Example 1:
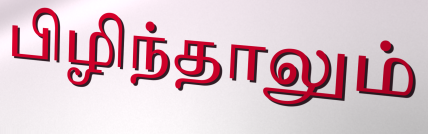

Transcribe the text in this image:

பிழிந்தாலும்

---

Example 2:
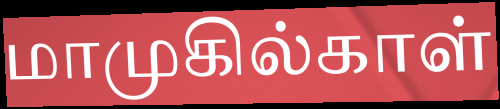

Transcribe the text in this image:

மாமுகில்காள்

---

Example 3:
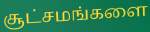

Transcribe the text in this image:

சூட்சமங்களை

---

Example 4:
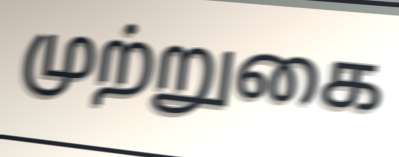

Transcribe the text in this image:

முற்றுகை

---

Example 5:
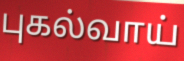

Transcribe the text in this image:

புகல்வாய்